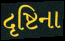
દૃષ્ટિના